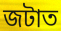
জটাত